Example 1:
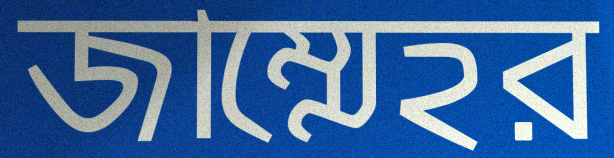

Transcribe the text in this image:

জাম্মেহর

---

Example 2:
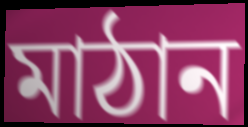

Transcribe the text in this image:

মাঠান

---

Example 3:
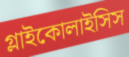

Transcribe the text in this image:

গ্লাইকোলাইসিস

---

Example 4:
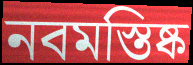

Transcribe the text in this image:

নবমস্তিষ্ক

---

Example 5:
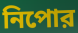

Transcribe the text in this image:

নিপোর